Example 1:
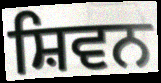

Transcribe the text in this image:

ਸ਼ਿਵਨ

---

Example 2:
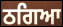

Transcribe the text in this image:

ਠਗਿਆ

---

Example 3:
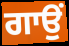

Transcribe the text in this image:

ਗਾਉਂ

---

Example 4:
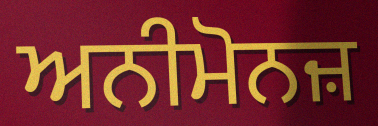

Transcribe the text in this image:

ਅਨੀਮੋਨਜ਼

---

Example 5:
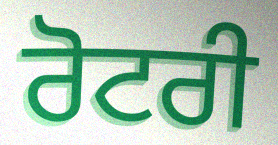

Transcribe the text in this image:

ਰੋਟਰੀ